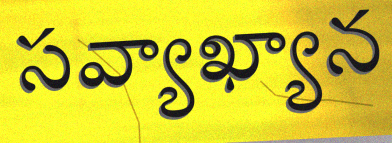
సవ్యాఖ్యాన